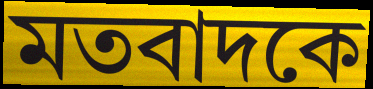
মতবাদকে